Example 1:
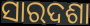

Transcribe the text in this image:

ସାରଦଶା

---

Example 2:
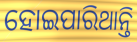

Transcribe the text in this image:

ହୋଇପାରିଥାନ୍ତି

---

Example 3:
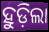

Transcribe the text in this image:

ହୁଡ଼ିଲା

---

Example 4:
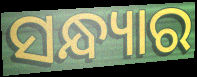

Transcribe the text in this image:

ସନ୍ଧ୍ୟାର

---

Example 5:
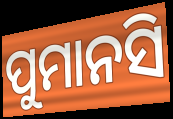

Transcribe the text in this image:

ପୁମାନସି